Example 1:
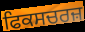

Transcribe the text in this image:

ਫਿਕਸਚਰਜ਼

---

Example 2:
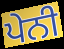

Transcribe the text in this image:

ਪੇਨੀ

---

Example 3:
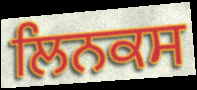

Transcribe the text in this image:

ਲਿਨਕਸ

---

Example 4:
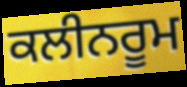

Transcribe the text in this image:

ਕਲੀਨਰੂਮ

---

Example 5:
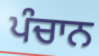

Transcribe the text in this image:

ਪੰਚਾਨ